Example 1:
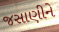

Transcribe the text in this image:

જસાણીને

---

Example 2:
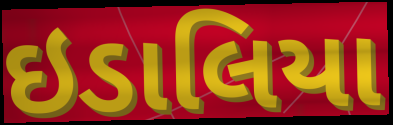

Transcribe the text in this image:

ઇડાલિયા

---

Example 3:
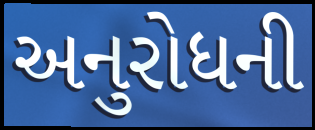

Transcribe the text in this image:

અનુરોધની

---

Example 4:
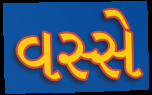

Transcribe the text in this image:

વસ્સે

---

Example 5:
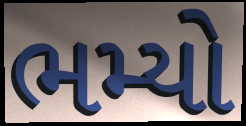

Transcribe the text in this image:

ભમ્યો